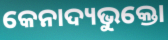
କେନାଦ୍ୟଭୁକ୍ତୋ